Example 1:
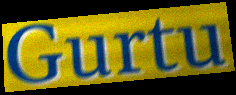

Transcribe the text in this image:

Gurtu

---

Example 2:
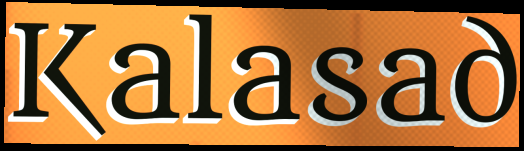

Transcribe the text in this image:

Kalasad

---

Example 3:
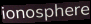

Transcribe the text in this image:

ionosphere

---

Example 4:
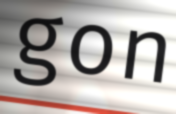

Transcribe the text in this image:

gon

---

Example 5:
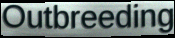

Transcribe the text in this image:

Outbreeding